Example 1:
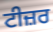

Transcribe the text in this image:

ਟੀਜ਼ਰ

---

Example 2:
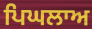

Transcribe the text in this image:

ਪਿਘਲਾਅ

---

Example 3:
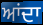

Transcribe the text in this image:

ਆਂਦਾ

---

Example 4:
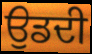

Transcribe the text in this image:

ਉਡਦੀ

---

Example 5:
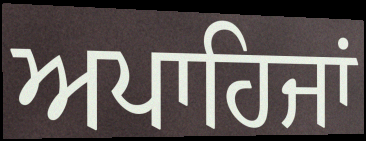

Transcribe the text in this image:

ਅਪਾਹਿਜਾਂ